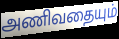
அணிவதையும்